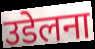
उडेलना